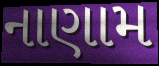
નાણામ